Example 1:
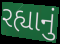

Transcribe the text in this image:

રહ્યાનું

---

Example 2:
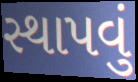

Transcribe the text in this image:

સ્થાપવું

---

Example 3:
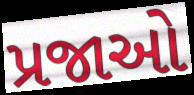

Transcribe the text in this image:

પ્રજાઓ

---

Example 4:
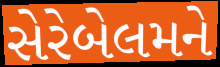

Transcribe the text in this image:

સેરેબેલમને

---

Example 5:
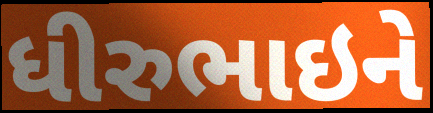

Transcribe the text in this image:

ધીરુભાઇને